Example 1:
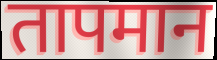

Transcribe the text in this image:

तापमान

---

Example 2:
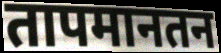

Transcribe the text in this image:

तापमानतन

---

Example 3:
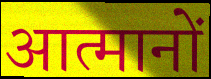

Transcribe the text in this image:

आत्मानों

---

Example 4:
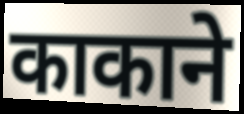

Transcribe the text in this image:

काकाने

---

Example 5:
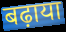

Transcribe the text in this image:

बढ़ाया